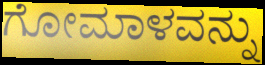
ಗೋಮಾಳವನ್ನು